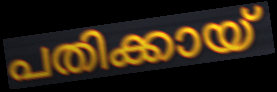
പതിക്കായ്